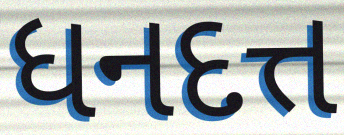
ધનદત્ત